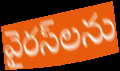
వైరస్‌లను